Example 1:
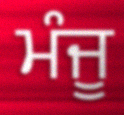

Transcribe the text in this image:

ਮੰਜੂ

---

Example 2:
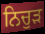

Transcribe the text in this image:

ਨਿਚੁੜ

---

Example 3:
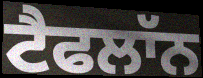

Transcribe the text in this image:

ਟੈਫਲਾੱਨ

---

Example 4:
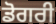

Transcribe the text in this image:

ਡੋਗਰੀ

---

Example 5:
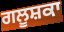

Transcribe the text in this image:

ਗਲੂਸ਼ਕਾ